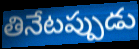
తినేటప్పుడు